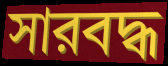
সারবদ্ধ